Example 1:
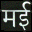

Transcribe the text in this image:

मई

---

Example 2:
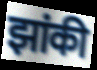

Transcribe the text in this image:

झांकी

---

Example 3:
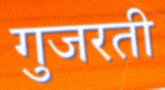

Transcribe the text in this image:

गुजरती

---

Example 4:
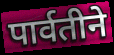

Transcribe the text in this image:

पार्वतीने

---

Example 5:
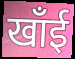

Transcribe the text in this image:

खाँई